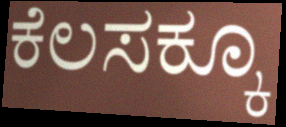
ಕೆಲಸಕ್ಕೂ